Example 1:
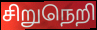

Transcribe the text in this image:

சிறுநெறி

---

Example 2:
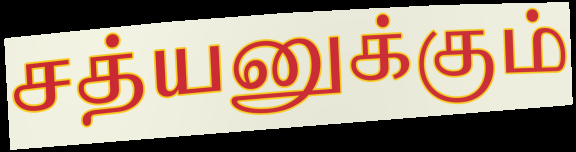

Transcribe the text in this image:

சத்யனுக்கும்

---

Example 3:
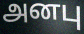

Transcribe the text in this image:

அனபு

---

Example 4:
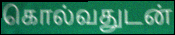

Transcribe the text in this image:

கொல்வதுடன்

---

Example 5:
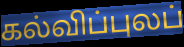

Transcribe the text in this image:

கல்விப்புலப்